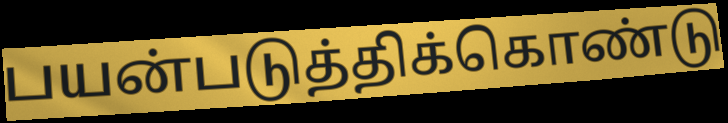
பயன்படுத்திக்கொண்டு